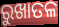
ରୁଖାତଳ